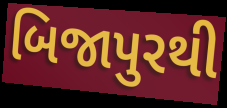
બિજાપુરથી